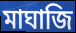
মাঘাজি